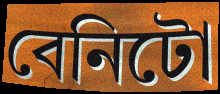
বেনিটো